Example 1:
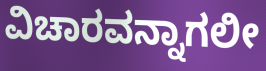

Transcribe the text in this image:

ವಿಚಾರವನ್ನಾಗಲೀ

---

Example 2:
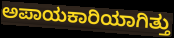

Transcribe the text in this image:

ಅಪಾಯಕಾರಿಯಾಗಿತ್ತು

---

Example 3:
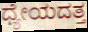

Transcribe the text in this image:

ಧ್ಯೇಯದತ್ತ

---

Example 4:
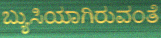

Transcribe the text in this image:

ಬ್ಯುಸಿಯಾಗಿರುವಂತೆ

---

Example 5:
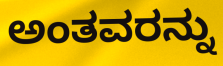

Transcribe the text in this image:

ಅಂತವರನ್ನು